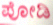
ಪೋಡಿ